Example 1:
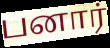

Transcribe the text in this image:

பனார்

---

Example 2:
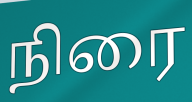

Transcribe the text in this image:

நிரை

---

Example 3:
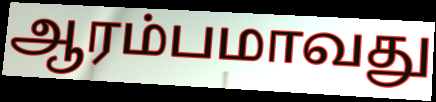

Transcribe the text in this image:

ஆரம்பமாவது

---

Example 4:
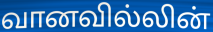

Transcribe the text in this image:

வானவில்லின்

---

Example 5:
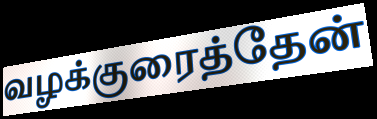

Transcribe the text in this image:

வழக்குரைத்தேன்